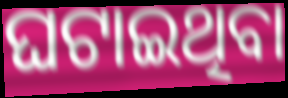
ଘଟାଇଥିବା